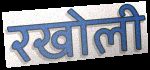
रखोली